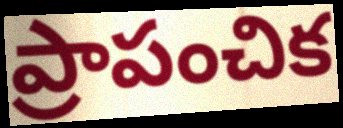
ప్రాపంచిక